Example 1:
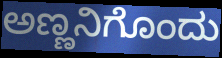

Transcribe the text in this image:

ಅಣ್ಣನಿಗೊಂದು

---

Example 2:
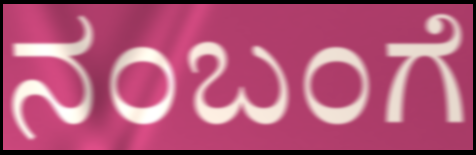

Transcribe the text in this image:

ನಂಬಂಗೆ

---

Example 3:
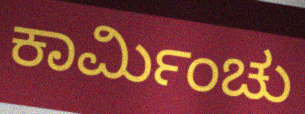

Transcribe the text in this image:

ಕಾರ್ಮಿಂಚು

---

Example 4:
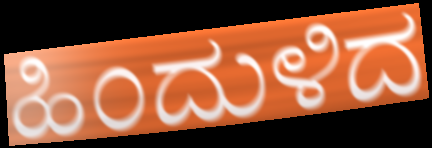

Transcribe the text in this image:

ಹಿಂದುಳಿದ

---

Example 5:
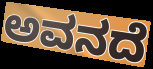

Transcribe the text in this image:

ಅವನದೆ